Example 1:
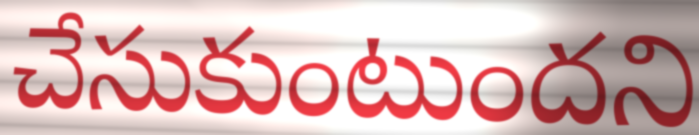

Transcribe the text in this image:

చేసుకుంటుందని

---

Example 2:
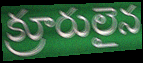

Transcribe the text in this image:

క్రూరులైన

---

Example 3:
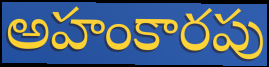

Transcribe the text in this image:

అహంకారపు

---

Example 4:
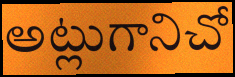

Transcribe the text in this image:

అట్లుగానిచో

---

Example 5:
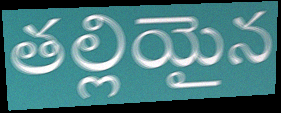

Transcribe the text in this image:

తల్లియైన